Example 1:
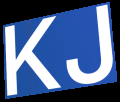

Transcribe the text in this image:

KJ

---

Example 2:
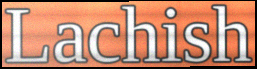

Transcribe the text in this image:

Lachish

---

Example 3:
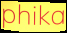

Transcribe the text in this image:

phika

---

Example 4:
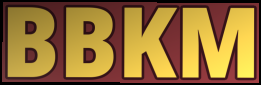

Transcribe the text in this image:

BBKM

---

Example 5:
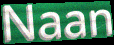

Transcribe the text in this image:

Naan